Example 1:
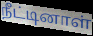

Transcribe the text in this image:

நீட்டினாள்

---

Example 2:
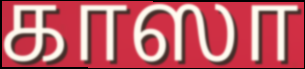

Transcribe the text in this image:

காஸா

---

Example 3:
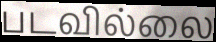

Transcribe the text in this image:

படவில்லை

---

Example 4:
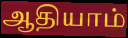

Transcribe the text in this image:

ஆதியாம்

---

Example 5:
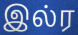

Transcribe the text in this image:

இல்ர